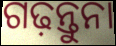
ଗଢ଼ନ୍ତୁନା